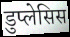
डुप्लेसिस